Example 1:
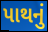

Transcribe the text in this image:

પાથનું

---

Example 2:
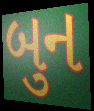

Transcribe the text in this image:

બુન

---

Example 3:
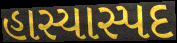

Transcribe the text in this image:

હાસ્યાસ્પદ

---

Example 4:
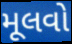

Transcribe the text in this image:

મૂલવો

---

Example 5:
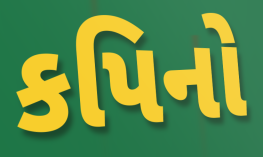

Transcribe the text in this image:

કપિનો